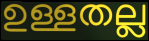
ഉള്ളതല്ല